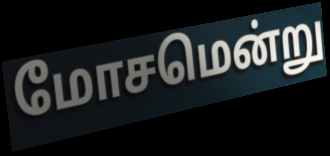
மோசமென்று